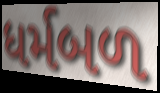
ધર્મબળ